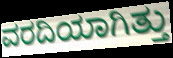
ವರದಿಯಾಗಿತ್ತು